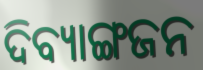
ଦିବ୍ୟାଙ୍ଗଜନ